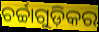
ଚର୍ଚ୍ଚାଗୁଡ଼ିକର